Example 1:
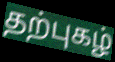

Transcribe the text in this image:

தற்புகழ்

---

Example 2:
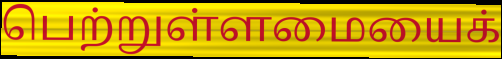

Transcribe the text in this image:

பெற்றுள்ளமையைக்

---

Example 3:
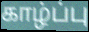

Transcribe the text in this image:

காழ்ப்பு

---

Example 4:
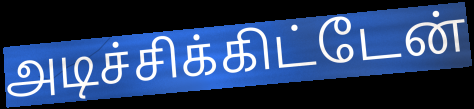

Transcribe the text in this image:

அடிச்சிக்கிட்டேன்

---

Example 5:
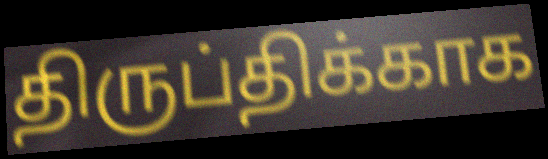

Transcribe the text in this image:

திருப்திக்காக